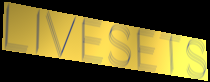
LIVESETS